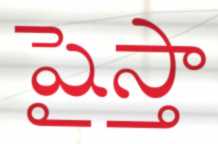
షైస్తా